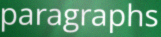
paragraphs